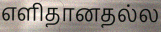
எளிதானதல்ல